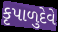
કૃપાળુદેવે